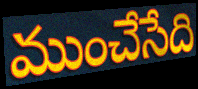
ముంచేసేది